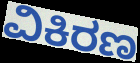
ವಿಕಿರಣ